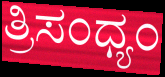
ತ್ರಿಸಂಧ್ಯಂ